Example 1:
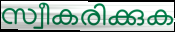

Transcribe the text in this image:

സ്വീകരിക്കുക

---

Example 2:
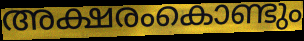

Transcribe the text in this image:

അക്ഷരംകൊണ്ടും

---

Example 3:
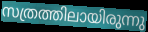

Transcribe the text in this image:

സത്രത്തിലായിരുന്നു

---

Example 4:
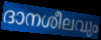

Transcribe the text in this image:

ദാനശീലവും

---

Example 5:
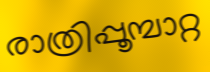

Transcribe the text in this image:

രാത്രിപ്പൂമ്പാറ്റ